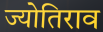
ज्योतिराव